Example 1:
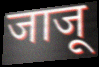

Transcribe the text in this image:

जाजू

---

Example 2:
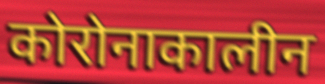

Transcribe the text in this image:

कोरोनाकालीन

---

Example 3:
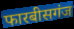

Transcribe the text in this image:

फारबीसगंज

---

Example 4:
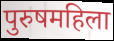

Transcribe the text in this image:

पुरुषमहिला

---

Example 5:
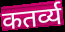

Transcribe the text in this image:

कतर्व्य